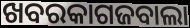
ଖବରକାଗଜବାଲା